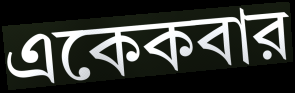
একেকবার